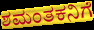
ಶಮಂತಕನಿಗೆ